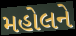
મહોલને